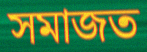
সমাজত